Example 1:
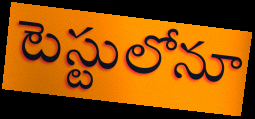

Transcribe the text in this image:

టెస్టులోనూ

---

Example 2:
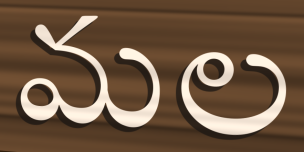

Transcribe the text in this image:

మల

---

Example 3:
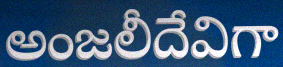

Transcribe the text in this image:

అంజలీదేవిగా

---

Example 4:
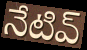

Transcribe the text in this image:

నేటివ్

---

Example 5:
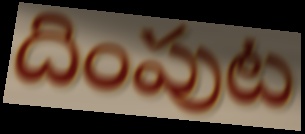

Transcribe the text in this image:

దింపుట